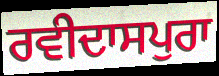
ਰਵੀਦਾਸਪੁਰਾ